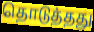
தொடுத்தது